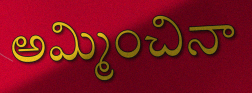
అమ్మించినా